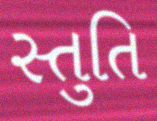
સ્તુતિ